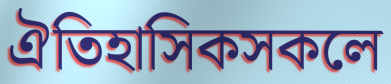
ঐতিহাসিকসকলে